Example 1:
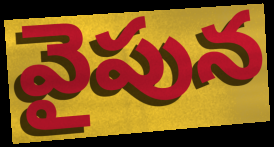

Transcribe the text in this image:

వైపున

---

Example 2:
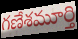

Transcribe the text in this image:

గణేశమూర్తి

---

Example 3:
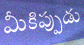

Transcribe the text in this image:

మీకిప్పుడు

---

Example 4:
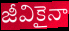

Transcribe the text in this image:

జీవికైనా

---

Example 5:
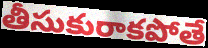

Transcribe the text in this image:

తీసుకురాకపోతే